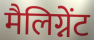
मैलिग्नेंट